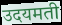
उदयमती